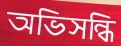
অভিসন্ধি